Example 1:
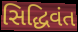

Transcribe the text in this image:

સિદ્ધિવંત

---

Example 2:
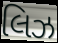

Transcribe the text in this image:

લિઝ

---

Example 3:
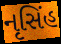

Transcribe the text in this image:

નૃસિંહ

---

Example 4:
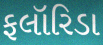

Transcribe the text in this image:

ફલૉરિડા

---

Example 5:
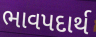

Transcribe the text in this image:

ભાવપદાર્થ